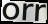
orr